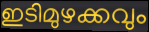
ഇടിമുഴക്കവും